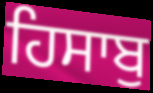
ਹਿਸਾਬੁ